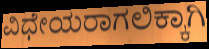
ವಿಧೇಯರಾಗಲಿಕ್ಕಾಗಿ